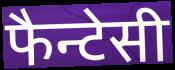
फैन्टेसी